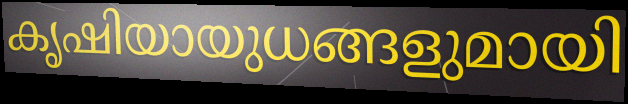
കൃഷിയായുധങ്ങളുമായി